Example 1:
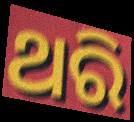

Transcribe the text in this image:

ଥରି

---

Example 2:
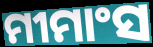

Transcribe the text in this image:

ମୀମାଂସ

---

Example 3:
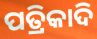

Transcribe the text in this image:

ପତ୍ରିକାଦି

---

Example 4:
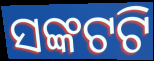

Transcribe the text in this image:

ସଙ୍କଟଟି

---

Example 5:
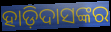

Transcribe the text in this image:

ହାଡ଼ିଦାସଙ୍କର